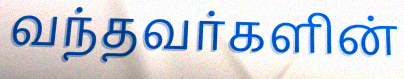
வந்தவர்களின்